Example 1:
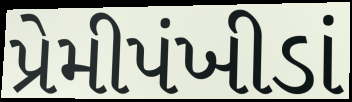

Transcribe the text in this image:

પ્રેમીપંખીડાં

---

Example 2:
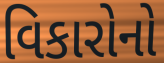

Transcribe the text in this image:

વિકારોનો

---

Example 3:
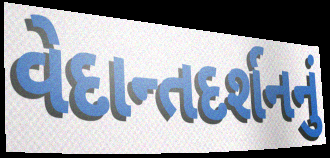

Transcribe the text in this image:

વેદાન્તદર્શનનું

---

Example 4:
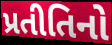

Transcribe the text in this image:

પ્રતીતિનો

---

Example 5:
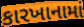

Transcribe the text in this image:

કારખાનામાં